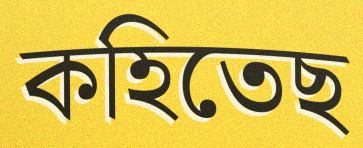
কহিতেছ